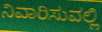
ನಿವಾರಿಸುವಲ್ಲಿ